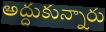
అద్దుకున్నారు